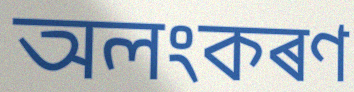
অলংকৰণ